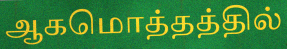
ஆகமொத்தத்தில்